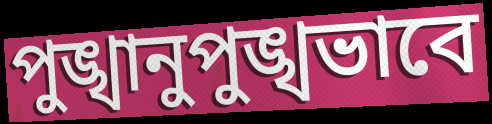
পুঙ্খানুপুঙ্খভাবে